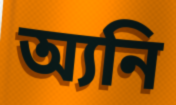
অ্যনি